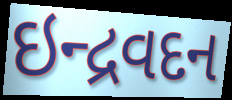
ઇન્દ્રવદન